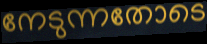
നേടുന്നതോടെ